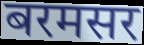
बरमसर